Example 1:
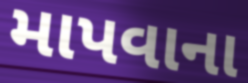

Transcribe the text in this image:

માપવાના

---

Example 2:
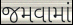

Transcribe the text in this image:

જમવામાં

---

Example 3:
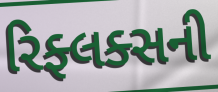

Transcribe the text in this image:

રિફ્લક્સની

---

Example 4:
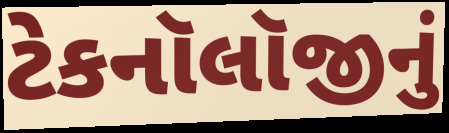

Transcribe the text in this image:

ટેકનૉલૉજીનું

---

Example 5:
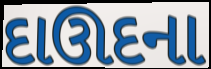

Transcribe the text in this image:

દાઊદના